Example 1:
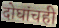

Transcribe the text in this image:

दोघांचही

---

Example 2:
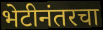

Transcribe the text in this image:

भेटीनंतरचा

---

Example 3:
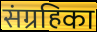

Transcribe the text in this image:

संग्रहिका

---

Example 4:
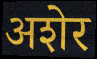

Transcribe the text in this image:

अशेर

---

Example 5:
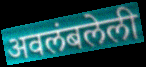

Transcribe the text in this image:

अवलंबलेली